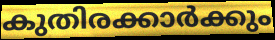
കുതിരക്കാർക്കും